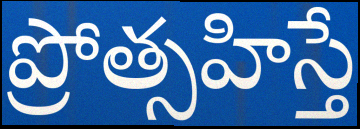
ప్రోత్సహిస్తే